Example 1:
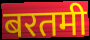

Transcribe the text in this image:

बरतमी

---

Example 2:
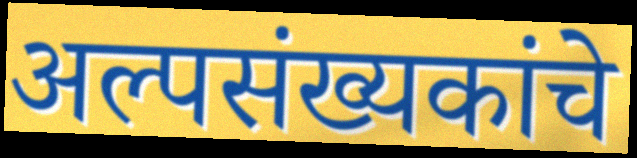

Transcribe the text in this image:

अल्पसंख्यकांचे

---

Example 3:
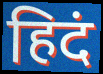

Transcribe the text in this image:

हिदं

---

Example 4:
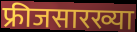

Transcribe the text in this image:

फ्रीजसारख्या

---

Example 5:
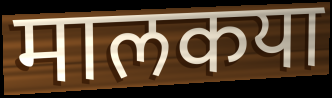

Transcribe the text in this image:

मालकया